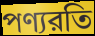
পণ্যরতি